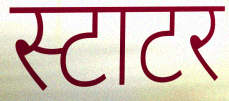
स्टाटर